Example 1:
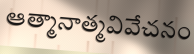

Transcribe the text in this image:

ఆత్మానాత్మవివేచనం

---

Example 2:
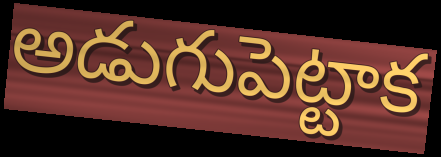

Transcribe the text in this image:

అడుగుపెట్టాక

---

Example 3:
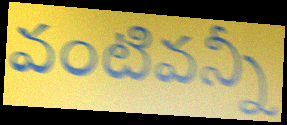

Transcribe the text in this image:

వంటివన్నీ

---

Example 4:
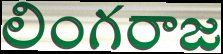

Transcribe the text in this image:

లింగరాజ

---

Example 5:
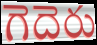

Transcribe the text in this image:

గెదెరు